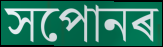
সপোনৰ